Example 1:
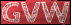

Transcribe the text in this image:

GVW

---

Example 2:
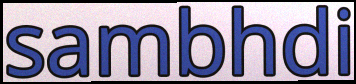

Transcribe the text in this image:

sambhdi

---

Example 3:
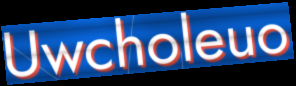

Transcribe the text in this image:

Uwcholeuo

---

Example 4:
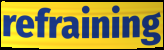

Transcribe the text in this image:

refraining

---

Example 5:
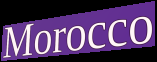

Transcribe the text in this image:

Morocco